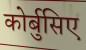
कोर्बुसिए